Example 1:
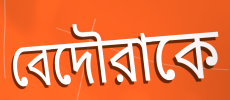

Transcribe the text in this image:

বেদৌরাকে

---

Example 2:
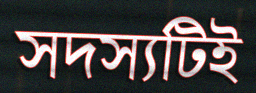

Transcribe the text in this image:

সদস্যটিই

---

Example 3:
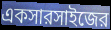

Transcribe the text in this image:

একসারসাইজের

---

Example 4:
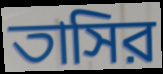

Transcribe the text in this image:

তাসির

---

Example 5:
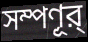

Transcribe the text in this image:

সম্পণূর্